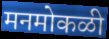
मनमोकळी